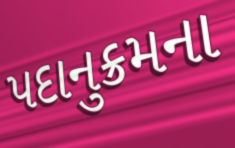
પદાનુક્રમના